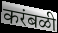
करंबळी